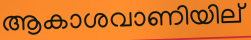
ആകാശവാണിയില്